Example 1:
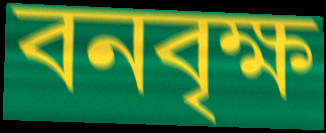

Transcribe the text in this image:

বনবৃক্ষ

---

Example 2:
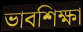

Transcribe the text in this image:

ভাবশিক্ষা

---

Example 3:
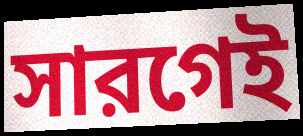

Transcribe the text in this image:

সারগেই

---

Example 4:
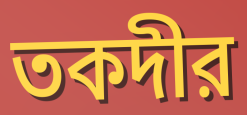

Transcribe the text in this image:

তকদীর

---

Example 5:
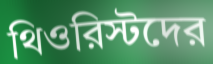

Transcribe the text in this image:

থিওরিস্টদের